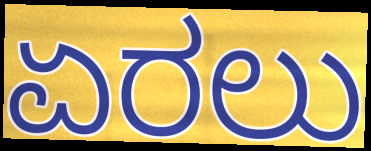
ಏರಲು